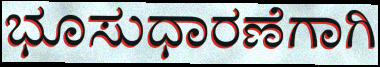
ಭೂಸುಧಾರಣೆಗಾಗಿ